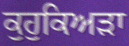
ਕੁਹੁਕਿਅੜਾ